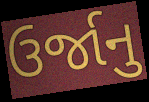
ઉર્જાનુ